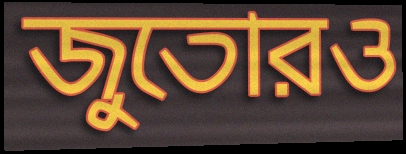
জুতোরও